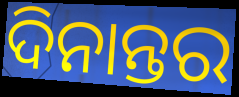
ଦିନାନ୍ତର